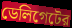
ডেলিগেটের